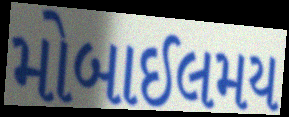
મોબાઈલમય